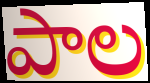
పాల